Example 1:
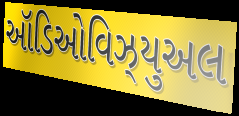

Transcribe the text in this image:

ઑડિઓવિઝ્યુઅલ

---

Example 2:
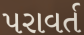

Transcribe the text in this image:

પરાવર્ત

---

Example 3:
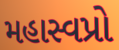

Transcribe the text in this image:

મહાસ્વપ્રો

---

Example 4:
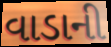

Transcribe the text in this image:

વાડાની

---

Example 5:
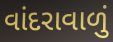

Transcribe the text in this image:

વાંદરાવાળું